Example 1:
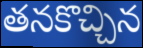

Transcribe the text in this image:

తనకొచ్చిన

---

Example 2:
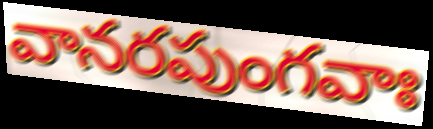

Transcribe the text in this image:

వానరపుంగవాః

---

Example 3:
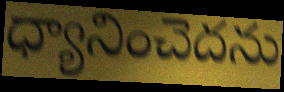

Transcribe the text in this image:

ధ్యానించెదను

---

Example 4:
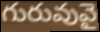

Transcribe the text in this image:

గురువువై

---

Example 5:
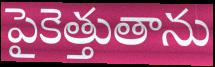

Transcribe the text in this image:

పైకెత్తుతాను